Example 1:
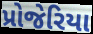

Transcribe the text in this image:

પ્રોજેરિયા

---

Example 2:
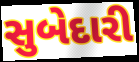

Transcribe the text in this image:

સુબેદારી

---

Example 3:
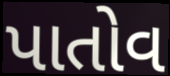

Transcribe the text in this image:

પાતોવ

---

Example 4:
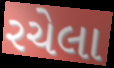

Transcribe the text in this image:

રચેલા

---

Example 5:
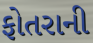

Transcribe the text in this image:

ફોતરાની